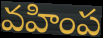
వహింప